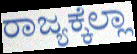
ರಾಜ್ಯಕ್ಕೆಲ್ಲಾ